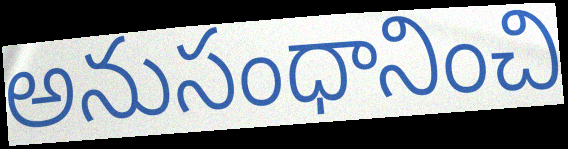
అనుసంధానించి